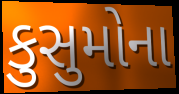
કુસુમોના